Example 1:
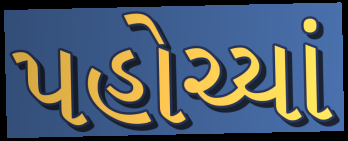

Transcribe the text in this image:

પહોચ્યાં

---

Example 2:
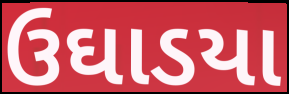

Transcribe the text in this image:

ઉઘાડયા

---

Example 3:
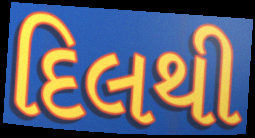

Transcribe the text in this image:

દિલથી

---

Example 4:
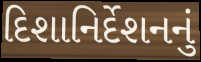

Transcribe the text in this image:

દિશાનિર્દેશનનું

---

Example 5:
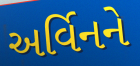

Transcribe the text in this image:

અર્વિનને